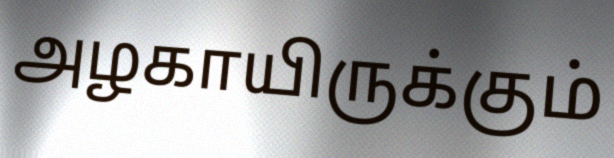
அழகாயிருக்கும்